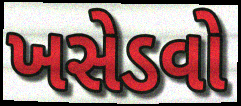
ખસેડવો